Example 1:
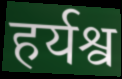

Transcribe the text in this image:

हर्यश्व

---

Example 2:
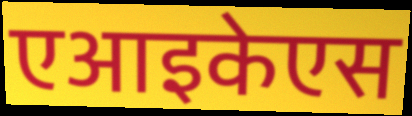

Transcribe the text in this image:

एआइकेएस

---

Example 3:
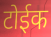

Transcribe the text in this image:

टोईक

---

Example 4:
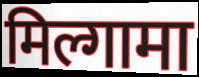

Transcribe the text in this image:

मिल्गामा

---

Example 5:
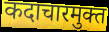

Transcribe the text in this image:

कदाचारमुक्त